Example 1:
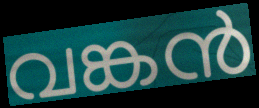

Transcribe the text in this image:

വങ്കൻ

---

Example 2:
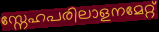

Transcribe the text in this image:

സ്നേഹപരിലാളനമേറ്റ്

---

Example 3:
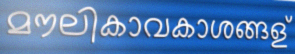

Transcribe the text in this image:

മൗലികാവകാശങ്ങള്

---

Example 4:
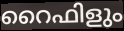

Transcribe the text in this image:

റൈഫിളും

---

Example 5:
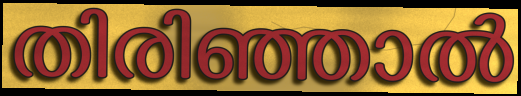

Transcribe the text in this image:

തിരിഞ്ഞാൽ